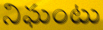
నిఘంటు